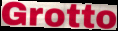
Grotto